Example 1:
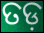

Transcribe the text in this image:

ତଡ଼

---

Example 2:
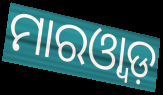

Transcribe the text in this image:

ମାରଓ୍ୱାଡ଼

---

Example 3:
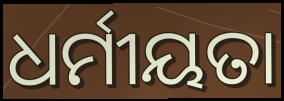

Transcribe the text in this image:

ଧର୍ମୀୟତା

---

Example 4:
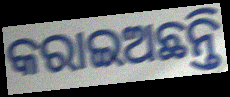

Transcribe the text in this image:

କରାଇଅଛନ୍ତି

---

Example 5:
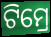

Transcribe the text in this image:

ଟିମ୍ରେ